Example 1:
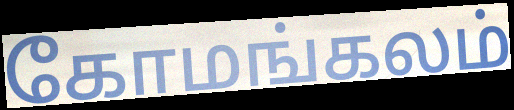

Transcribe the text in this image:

கோமங்கலம்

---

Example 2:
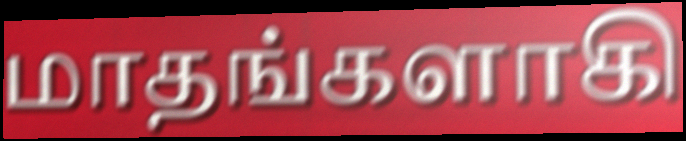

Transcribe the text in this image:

மாதங்களாகி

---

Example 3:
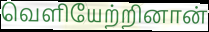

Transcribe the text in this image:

வெளியேற்றினான்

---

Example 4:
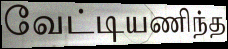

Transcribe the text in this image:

வேட்டியணிந்த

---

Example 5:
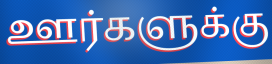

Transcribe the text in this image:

ஊர்களுக்கு